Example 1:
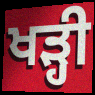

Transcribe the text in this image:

ਖੜ੍ਹੀ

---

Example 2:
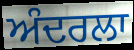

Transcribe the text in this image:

ਅੰਦਰਲਾ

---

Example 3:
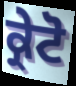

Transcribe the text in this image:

ਕ੍ਰੇਟੋ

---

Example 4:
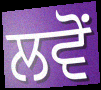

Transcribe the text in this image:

ਲਵੋਂ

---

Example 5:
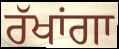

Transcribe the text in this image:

ਰੱਖਾਂਗਾ